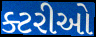
ક્ટરીઓ